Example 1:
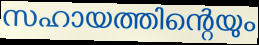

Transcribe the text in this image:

സഹായത്തിന്റെയും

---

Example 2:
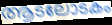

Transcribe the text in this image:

ആടലോടകം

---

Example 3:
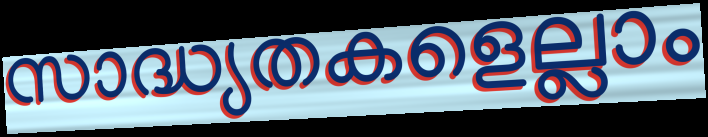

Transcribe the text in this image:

സാദ്ധ്യതകളെല്ലാം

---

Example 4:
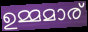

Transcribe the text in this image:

ഉമ്മമാര്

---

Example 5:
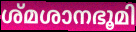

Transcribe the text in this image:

ശ്മശാനഭൂമി